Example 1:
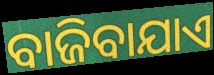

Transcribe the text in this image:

ବାଜିବାଯାଏ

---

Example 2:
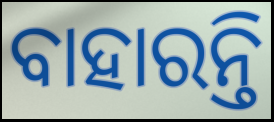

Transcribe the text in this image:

ବାହାରନ୍ତି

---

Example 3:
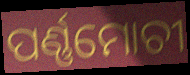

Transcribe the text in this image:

ପର୍ଣ୍ଣମୋଚୀ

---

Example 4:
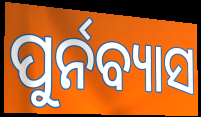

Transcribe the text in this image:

ପୁର୍ନବ୍ୟାସ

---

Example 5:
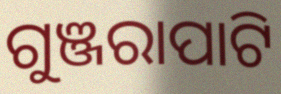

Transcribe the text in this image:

ଗୁଞ୍ଜରାପାଟି